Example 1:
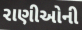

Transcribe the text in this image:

રાણીઓની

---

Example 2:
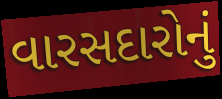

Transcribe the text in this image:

વારસદારોનું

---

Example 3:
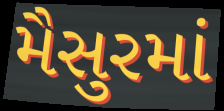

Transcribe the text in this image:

મૈસુરમાં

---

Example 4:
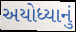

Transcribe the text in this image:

અયોધ્યાનું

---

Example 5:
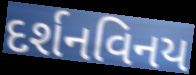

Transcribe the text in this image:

દર્શનવિનય